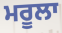
ਮਰੂਲਾ